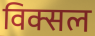
विक्सल